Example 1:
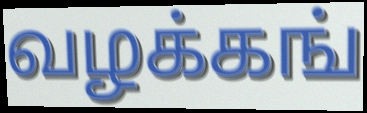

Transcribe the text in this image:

வழக்கங்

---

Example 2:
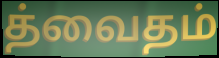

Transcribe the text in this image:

த்வைதம்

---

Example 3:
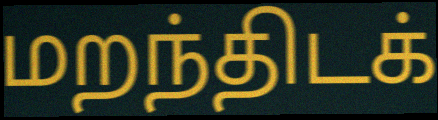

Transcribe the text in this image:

மறந்திடக்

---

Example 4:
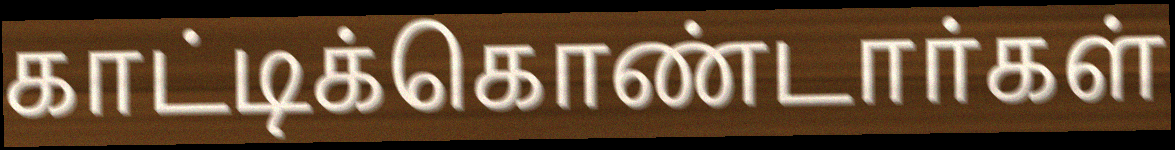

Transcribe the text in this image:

காட்டிக்கொண்டார்கள்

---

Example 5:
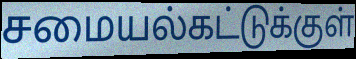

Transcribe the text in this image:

சமையல்கட்டுக்குள்